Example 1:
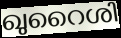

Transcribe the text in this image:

ഖുറൈശി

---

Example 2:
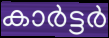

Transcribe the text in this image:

കാർട്ടർ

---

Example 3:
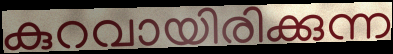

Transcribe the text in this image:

കുറവായിരിക്കുന്ന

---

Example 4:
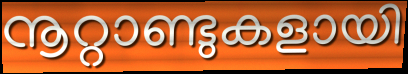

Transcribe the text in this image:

നൂറ്റാണ്ടുകളായി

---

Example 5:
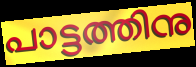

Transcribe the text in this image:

പാട്ടത്തിനു